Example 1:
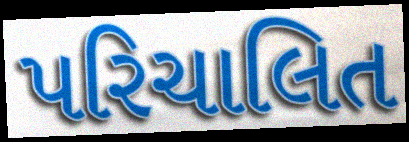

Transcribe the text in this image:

પરિચાલિત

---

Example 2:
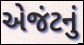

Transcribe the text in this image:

એજંટનું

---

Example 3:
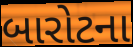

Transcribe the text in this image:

બારોટના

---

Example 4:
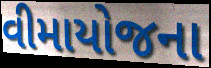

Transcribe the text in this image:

વીમાયોજના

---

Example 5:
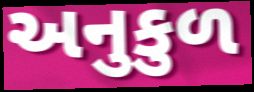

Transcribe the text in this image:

અનુકુળ